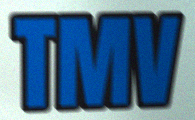
TMV